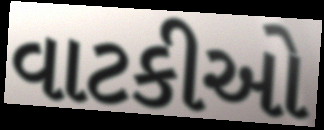
વાટકીઓ